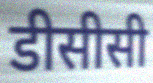
डीसीसी